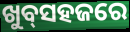
ଖୁବ୍‌ସହଜରେ